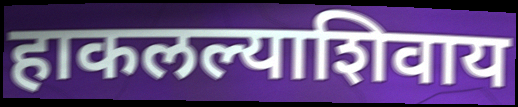
हाकलल्याशिवाय